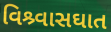
વિશ્ર્વાસઘાત